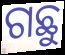
ଗଛୁ